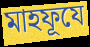
মাহফূযে